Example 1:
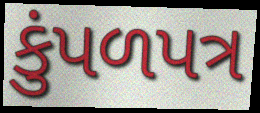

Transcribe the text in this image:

કુંપળપત્ર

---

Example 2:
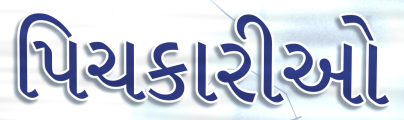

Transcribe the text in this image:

પિચકારીઓ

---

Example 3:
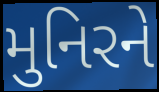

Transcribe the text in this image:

મુનિરને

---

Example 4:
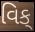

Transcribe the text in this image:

વિક્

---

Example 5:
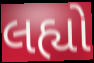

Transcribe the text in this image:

લહ્યો